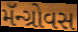
મૅન્ગ્રોવસ